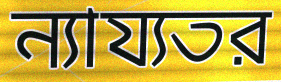
ন্যায্যতর